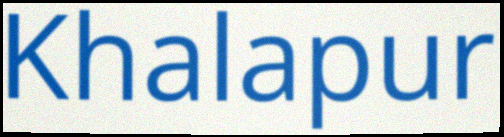
Khalapur